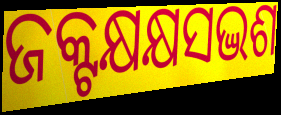
ଜକ୍ଟକ୍ଷକ୍ଷସଦ୍ଭଶ